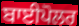
ਬਾਈਪੋਲਰ